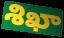
శిఖా